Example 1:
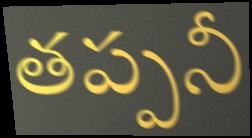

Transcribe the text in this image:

తప్పనీ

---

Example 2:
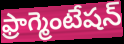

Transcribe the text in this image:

ఫ్రాగ్మెంటేషన్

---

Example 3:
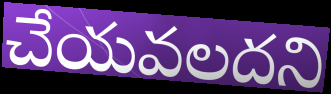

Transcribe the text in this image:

చేయవలదని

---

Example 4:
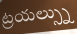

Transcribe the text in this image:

ట్రయల్స్ను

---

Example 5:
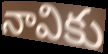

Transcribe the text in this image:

నావికు